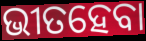
ଭୀତହେବା